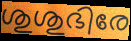
ശുശുഭിരേ